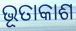
ଭୂତାକାଶ